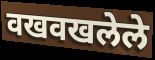
वखवखलेले